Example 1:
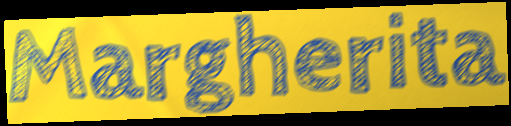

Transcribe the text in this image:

Margherita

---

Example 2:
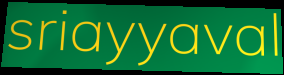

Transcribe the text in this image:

sriayyaval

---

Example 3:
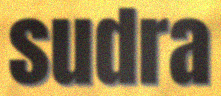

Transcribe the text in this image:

sudra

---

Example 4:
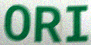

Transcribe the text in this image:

ORI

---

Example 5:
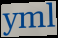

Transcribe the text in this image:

yml